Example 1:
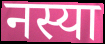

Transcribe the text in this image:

नस्या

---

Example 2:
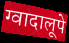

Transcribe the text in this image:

ग्वादालूपे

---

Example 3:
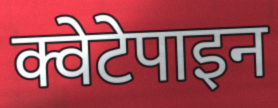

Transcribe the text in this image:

क्वेटेपाइन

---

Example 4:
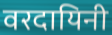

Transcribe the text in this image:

वरदायिनी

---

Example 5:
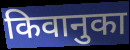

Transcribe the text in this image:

किवानुका